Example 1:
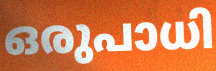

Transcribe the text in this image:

ഒരുപാധി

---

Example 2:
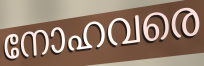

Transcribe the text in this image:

നോഹവരെ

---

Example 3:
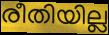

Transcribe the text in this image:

രീതിയില്ല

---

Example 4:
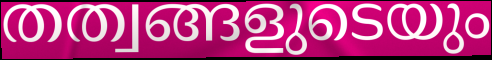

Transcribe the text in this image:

തത്വങ്ങളുടെയും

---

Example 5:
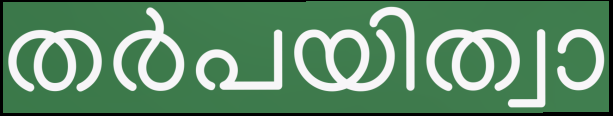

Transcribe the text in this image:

തർപയിത്വാ